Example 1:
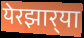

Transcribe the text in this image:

येरझार्‍या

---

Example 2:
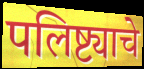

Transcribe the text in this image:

पलिष्ट्याचे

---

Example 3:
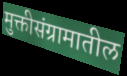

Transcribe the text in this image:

मुक्तीसंग्रामातील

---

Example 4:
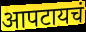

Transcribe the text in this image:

आपटायचं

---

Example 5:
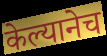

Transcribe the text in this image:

केल्यानेच